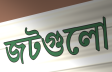
জটগুলো